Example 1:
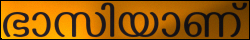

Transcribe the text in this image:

ഭാസിയാണ്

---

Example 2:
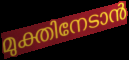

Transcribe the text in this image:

മുക്തിനേടാൻ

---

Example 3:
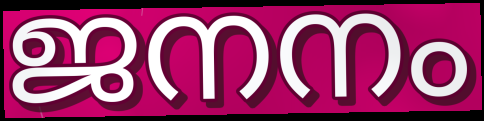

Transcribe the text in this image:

ജനനം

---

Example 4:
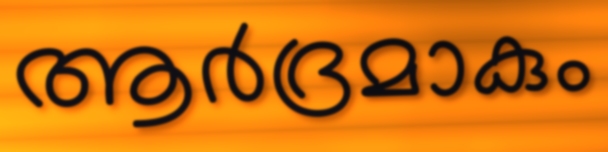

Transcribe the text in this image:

ആർദ്രമാകും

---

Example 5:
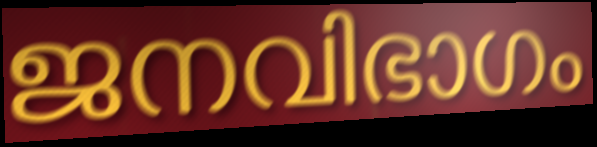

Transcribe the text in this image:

ജനവിഭാഗം